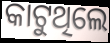
କାଟୁଥିଲେ